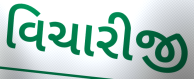
વિચારીજી